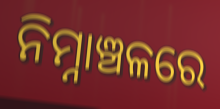
ନିମ୍ନାଞ୍ଚଳରେ